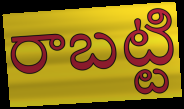
రాబట్టి